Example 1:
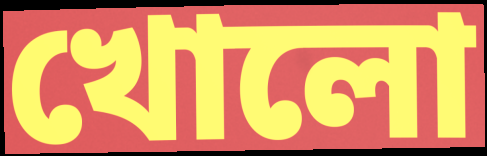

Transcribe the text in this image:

খোলো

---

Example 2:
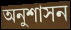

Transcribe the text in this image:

অনুশাসন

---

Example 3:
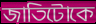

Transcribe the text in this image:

জাতিটোকে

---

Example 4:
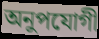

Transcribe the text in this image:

অনুপযোগী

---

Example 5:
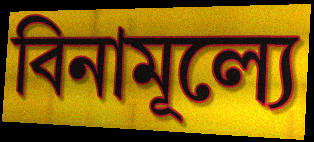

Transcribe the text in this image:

বিনামূল্যে